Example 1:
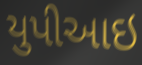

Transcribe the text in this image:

યુપીઆઇ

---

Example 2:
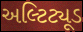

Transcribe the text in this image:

અલ્ટિટ્યૂડ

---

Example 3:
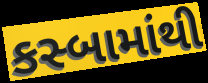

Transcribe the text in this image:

કસ્બામાંથી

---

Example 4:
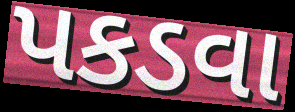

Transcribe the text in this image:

પકડવા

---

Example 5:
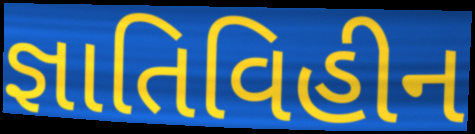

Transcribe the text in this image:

જ્ઞાતિવિહીન